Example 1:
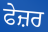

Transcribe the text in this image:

ਫੇਜ਼ਰ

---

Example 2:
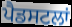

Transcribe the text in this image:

ਪੈਡਸਟਲਾਂ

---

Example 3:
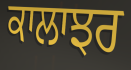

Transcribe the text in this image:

ਕਾਲਾਝਰ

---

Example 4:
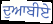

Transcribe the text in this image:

ਦੁਆਬੀਏ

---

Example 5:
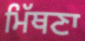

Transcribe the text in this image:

ਮਿੱਥਣਾ